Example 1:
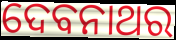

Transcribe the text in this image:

ଦେବନାଥର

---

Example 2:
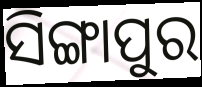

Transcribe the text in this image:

ସିଙ୍ଗାପୁର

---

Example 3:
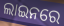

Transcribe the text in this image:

ଲାଇନରେ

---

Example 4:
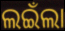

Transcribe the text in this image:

ଲଇଁଲା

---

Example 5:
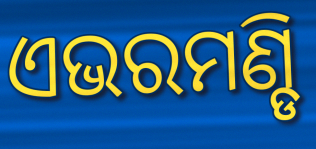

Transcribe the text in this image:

ଏଭରମଣ୍ଡି